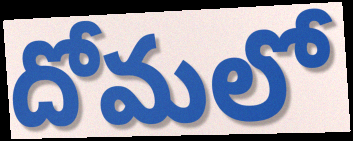
దోమలో